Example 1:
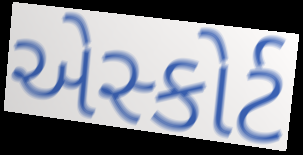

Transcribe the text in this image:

એસ્કોર્ટ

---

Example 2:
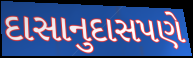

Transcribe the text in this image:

દાસાનુદાસપણે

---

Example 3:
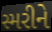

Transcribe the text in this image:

સ્મરીને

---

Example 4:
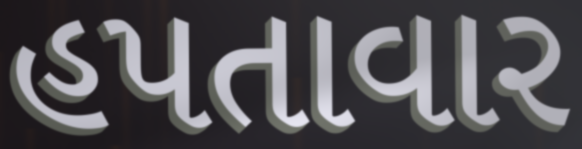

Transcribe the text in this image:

હપતાવાર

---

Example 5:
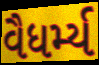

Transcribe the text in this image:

વૈધર્મ્ય